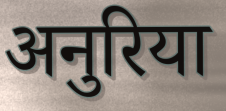
अनुरिया